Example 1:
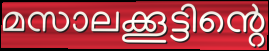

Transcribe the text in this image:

മസാലക്കൂട്ടിന്റെ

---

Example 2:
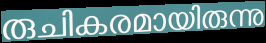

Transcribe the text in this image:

രുചികരമായിരുന്നു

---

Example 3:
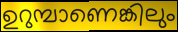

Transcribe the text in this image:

ഉറുമ്പാണെങ്കിലും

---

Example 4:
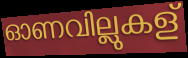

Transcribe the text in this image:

ഓണവില്ലുകള്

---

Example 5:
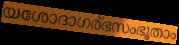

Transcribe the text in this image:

യശോദാഗര്ഭസംഭൂതാം